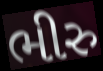
ભીરુ